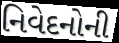
નિવેદનોની